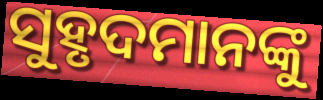
ସୁହୃଦମାନଙ୍କୁ